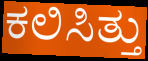
ಕಲಿಸಿತ್ತು